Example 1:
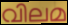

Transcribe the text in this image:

വിലമ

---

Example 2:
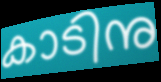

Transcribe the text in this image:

കാടിനു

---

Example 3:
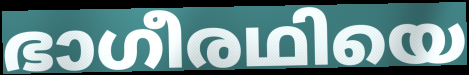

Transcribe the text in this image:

ഭാഗീരഥിയെ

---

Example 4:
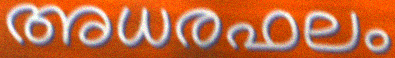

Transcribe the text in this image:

അധരഫലം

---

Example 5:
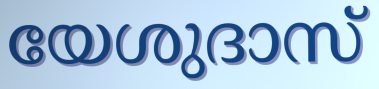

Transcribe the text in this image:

യേശുദാസ്